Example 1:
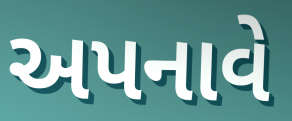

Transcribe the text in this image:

અપનાવે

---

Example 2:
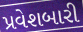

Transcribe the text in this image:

પ્રવેશબારી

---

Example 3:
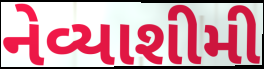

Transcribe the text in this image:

નેવ્યાશીમી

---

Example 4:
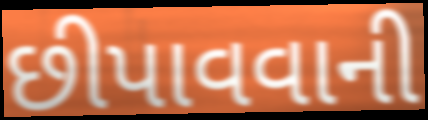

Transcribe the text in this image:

છીપાવવાની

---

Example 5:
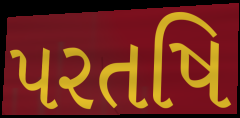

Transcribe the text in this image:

પરતષિ